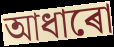
আধাৰো